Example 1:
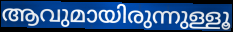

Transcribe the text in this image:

ആവുമായിരുന്നുള്ളൂ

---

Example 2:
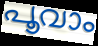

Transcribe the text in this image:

പൂവാം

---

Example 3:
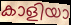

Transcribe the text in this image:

കാളിയാ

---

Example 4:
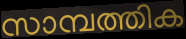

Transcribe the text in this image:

സാമ്പത്തിക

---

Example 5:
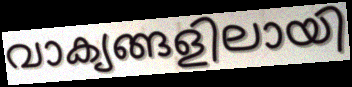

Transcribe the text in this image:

വാക്യങ്ങളിലായി